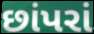
છાંપરાં